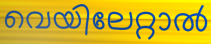
വെയിലേറ്റാൽ